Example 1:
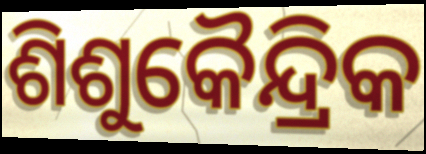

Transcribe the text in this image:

ଶିଶୁକୈନ୍ଦ୍ରିକ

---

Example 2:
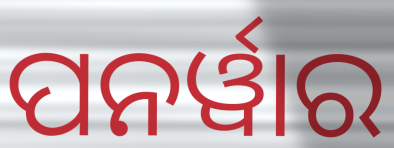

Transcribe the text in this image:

ପନର୍ୱାର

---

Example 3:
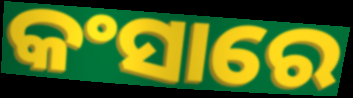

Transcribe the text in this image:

କଂସାରେ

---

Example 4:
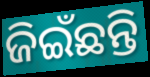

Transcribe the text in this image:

ଜିଇଁଛନ୍ତି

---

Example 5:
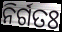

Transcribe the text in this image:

ନିର୍ଗତଃ